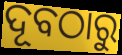
ଦୂବଠାରୁ